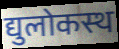
द्युलोकस्थ